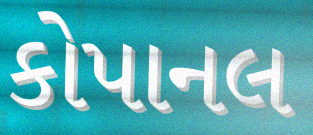
કોપાનલ